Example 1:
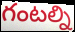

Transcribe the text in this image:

గంటల్ని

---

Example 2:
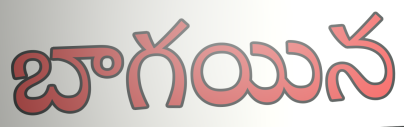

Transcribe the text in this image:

బాగయిన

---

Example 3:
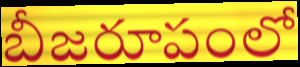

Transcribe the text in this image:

బీజరూపంలో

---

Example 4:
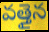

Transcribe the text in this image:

వత్తైన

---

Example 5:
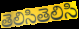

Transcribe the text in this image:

తెలిసితెలిసి